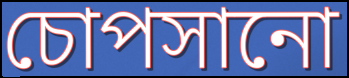
চোপসানো